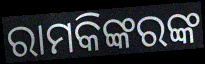
ରାମକିଙ୍କରଙ୍କ